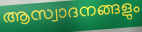
ആസ്വാദനങ്ങളും